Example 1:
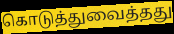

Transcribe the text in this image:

கொடுத்துவைத்தது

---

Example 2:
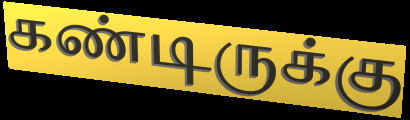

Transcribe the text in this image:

கண்டிருக்கு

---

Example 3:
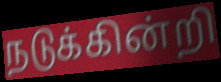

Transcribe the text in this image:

நடுக்கின்றி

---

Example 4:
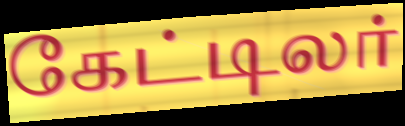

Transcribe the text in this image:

கேட்டிலர்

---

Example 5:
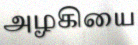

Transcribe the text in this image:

அழகியை